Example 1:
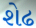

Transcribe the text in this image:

શેઢ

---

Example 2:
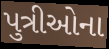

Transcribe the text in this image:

પુત્રીઓના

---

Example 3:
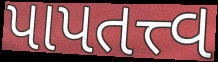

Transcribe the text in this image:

પાપતત્ત્વ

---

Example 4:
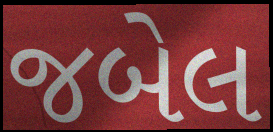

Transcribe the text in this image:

જબેલ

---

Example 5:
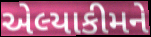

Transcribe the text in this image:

એલ્યાકીમને